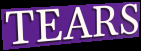
TEARS